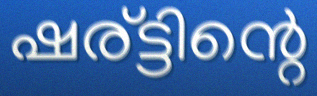
ഷര്ട്ടിന്റെ